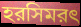
হরসিমরৎ